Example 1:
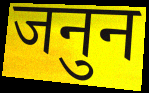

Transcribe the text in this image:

जनुन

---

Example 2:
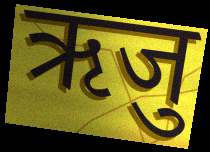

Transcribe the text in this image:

ऋजु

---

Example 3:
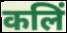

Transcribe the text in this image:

कलिं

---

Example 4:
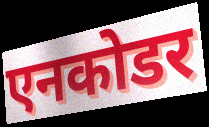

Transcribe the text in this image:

एनकोडर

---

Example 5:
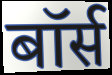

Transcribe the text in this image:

बॉर्स